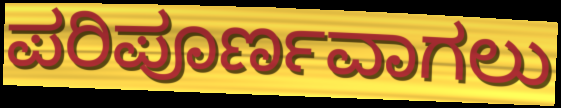
ಪರಿಪೂರ್ಣವಾಗಲು